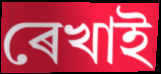
ৰেখাই